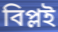
বিপ্লই